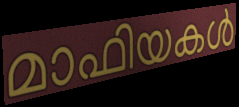
മാഫിയകൾ